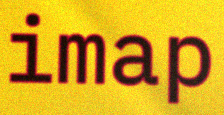
imap